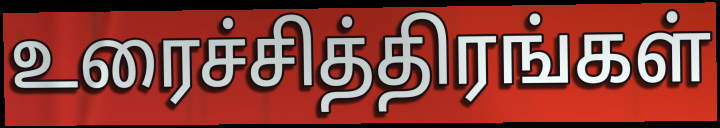
உரைச்சித்திரங்கள்